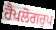
ਹੈਪਲੋਗਰੁਪ